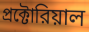
প্রক্টোরিয়াল